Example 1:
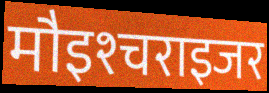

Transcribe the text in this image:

मौइश्चराइजर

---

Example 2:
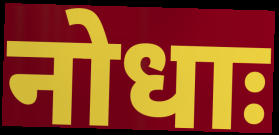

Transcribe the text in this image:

नोधाः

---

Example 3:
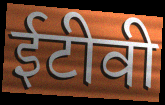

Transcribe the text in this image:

ईटीवी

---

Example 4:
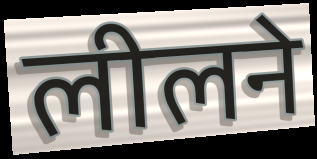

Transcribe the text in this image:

लीलने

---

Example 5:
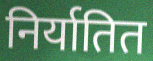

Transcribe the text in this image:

निर्यातित